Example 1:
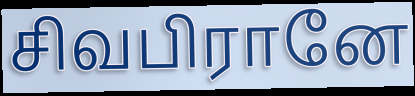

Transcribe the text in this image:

சிவபிரானே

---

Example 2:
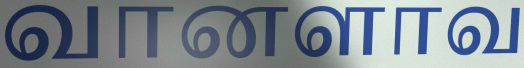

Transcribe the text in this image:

வானளாவ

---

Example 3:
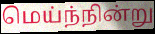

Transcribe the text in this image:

மெய்ந்நின்று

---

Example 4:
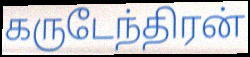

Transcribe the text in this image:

கருடேந்திரன்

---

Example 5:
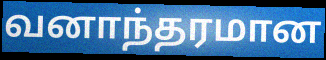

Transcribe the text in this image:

வனாந்தரமான